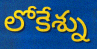
లోకేశ్ను